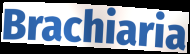
Brachiaria